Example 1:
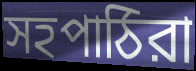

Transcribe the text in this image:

সহপাঠিরা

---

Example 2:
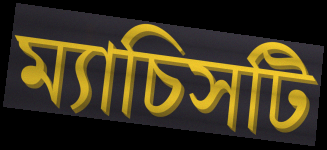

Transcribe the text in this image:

ম্যাচিসটি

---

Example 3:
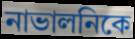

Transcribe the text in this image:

নাভালনিকে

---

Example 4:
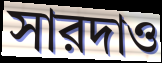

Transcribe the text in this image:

সারদাও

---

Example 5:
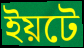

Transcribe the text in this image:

ইয়টে